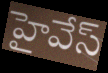
హైవేస్